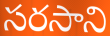
సరసాని